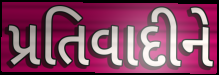
પ્રતિવાદીને